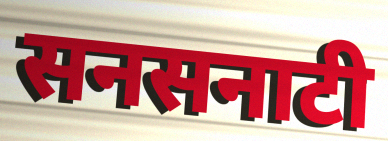
सनसनाटी